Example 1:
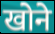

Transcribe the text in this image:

खोने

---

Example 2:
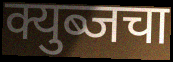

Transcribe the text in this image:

क्युब्जचा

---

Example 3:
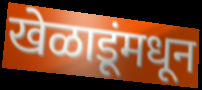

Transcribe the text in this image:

खेळाडूंमधून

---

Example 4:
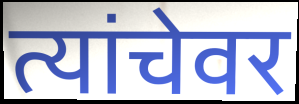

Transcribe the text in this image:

त्यांचेवर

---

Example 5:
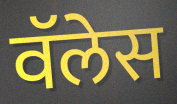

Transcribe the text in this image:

वॅलेस